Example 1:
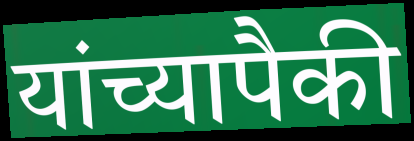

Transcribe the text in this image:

यांच्यापैकी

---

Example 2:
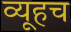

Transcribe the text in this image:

व्यूहच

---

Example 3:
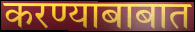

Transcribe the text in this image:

करण्याबाबात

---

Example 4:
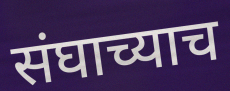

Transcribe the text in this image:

संघाच्याच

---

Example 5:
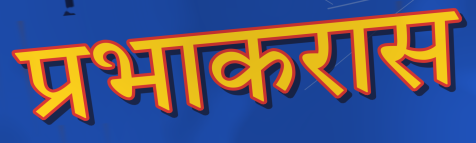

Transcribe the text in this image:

प्रभाकरास